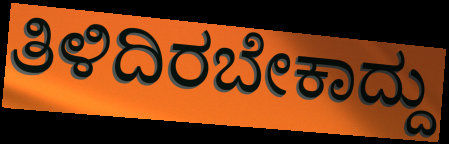
ತಿಳಿದಿರಬೇಕಾದ್ದು